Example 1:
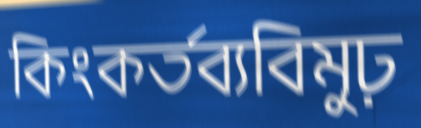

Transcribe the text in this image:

কিংকর্তব্যবিমুঢ়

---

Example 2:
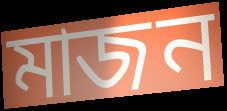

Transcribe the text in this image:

মাজন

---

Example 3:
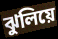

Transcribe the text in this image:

ঝুলিয়ে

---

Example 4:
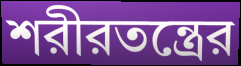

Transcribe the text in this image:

শরীরতন্ত্রের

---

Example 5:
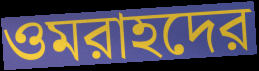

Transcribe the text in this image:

ওমরাহদের